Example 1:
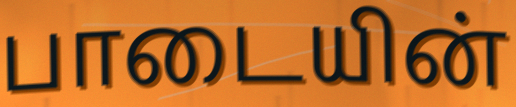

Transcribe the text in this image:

பாடையின்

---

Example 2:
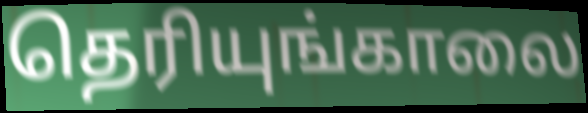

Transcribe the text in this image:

தெரியுங்காலை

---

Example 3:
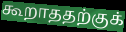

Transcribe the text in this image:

கூறாததற்குக்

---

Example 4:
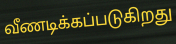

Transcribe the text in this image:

வீணடிக்கப்படுகிறது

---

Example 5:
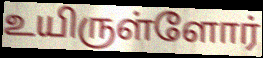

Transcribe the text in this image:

உயிருள்ளோர்